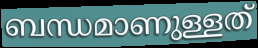
ബന്ധമാണുള്ളത്